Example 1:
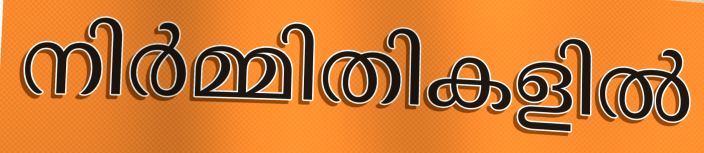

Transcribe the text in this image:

നിർമ്മിതികളിൽ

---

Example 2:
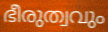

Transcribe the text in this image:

ഭീരുത്വവും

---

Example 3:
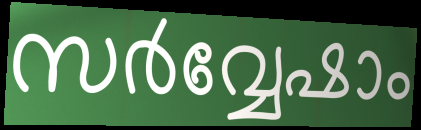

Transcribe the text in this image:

സർവ്വേഷാം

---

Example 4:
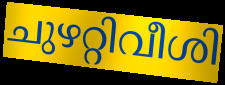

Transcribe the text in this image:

ചുഴറ്റിവീശി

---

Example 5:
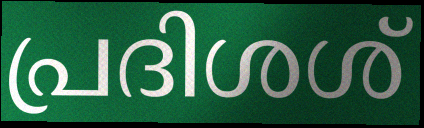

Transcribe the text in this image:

പ്രദിശശ്